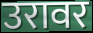
उरावर